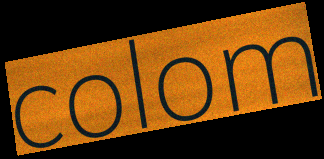
colom